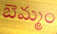
బెమ్మం